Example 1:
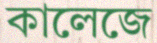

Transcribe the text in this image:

কালেজে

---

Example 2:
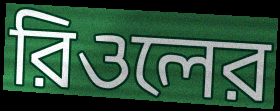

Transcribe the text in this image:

রিওলের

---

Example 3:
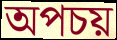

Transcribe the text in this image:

অপচয়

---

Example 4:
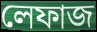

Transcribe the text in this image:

লেফাজ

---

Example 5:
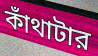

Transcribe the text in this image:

কাঁথাটার